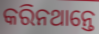
କରିନଥାନ୍ତେ